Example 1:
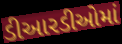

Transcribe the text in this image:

ડીઆરડીઓમાં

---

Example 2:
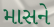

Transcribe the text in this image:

માસને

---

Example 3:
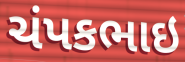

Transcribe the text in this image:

ચંપકભાઇ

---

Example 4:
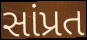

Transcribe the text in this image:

સાંપ્રત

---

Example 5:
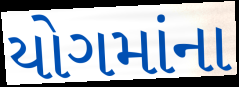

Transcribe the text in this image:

યોગમાંના